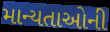
માન્યતાઓની